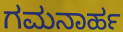
ಗಮನಾರ್ಹ